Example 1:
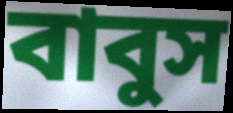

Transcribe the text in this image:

বাবুস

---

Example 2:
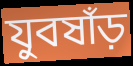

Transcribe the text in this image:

যুবষাঁড়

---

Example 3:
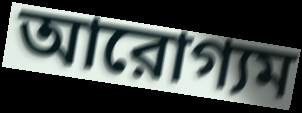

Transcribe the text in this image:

আরোগ্যম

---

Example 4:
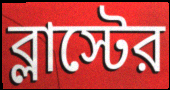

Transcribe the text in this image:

ব্লাস্টের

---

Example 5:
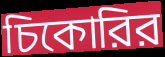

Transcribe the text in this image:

চিকোরির